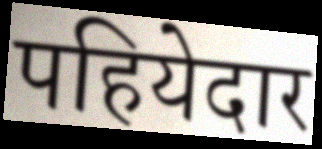
पहियेदार